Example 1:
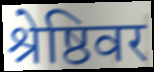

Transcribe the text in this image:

श्रेष्ठिवर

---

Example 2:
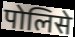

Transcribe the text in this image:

पोलिसे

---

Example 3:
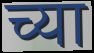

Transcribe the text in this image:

च्या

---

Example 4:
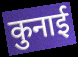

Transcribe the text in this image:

कुनाई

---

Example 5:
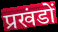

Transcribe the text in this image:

प्रखंडों